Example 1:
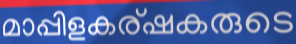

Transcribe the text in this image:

മാപ്പിളകര്ഷകരുടെ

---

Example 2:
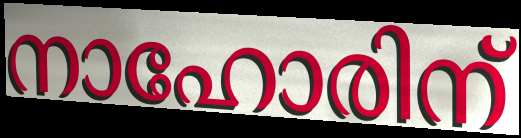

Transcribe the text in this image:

നാഹോരിന്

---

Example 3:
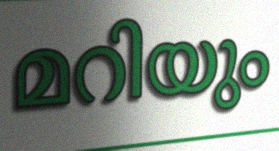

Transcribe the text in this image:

മറിയും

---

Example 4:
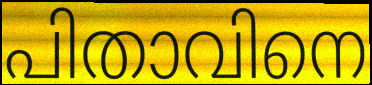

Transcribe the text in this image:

പിതാവിനെ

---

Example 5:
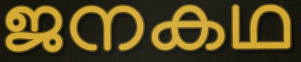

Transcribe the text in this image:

ജനകഥ